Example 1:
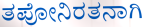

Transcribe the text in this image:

ತಪೋನಿರತನಾಗಿ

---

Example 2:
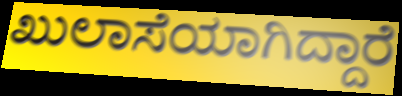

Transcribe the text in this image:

ಖುಲಾಸೆಯಾಗಿದ್ದಾರೆ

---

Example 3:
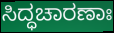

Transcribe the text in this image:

ಸಿದ್ಧಚಾರಣಾಃ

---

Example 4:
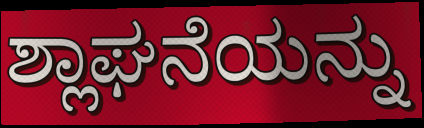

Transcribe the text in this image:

ಶ್ಲಾಘನೆಯನ್ನು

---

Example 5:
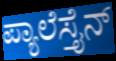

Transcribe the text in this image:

ಪ್ಯಾಲೆಸ್ತೈನ್